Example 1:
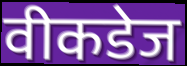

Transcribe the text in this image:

वीकडेज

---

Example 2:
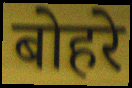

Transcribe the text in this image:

बोहरे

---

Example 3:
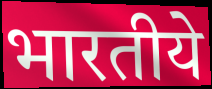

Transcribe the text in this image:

भारतीये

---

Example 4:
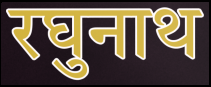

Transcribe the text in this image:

रघुनाथ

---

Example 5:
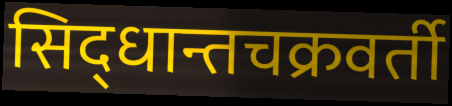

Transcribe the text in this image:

सिद्धान्तचक्रवर्ती